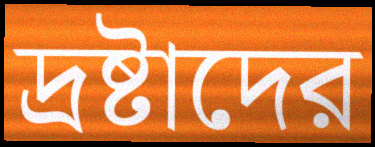
দ্রষ্টাদের